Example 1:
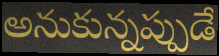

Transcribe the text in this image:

అనుకున్నప్పుడే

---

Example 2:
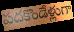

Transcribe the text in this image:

పదకొండేళ్లుగా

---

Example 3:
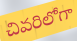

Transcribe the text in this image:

చివరిలోగా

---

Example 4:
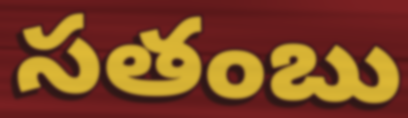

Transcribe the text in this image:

సతంబు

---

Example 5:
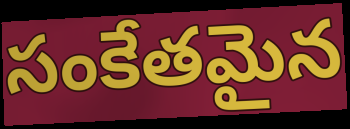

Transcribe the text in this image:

సంకేతమైన